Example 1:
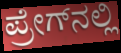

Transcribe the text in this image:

ಪ್ರೇಗ್‌ನಲ್ಲಿ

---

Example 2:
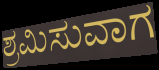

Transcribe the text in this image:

ಶ್ರಮಿಸುವಾಗ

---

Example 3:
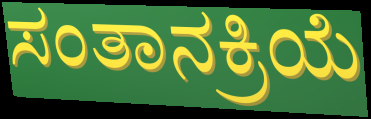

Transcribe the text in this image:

ಸಂತಾನಕ್ರಿಯೆ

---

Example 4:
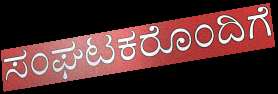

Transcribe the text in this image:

ಸಂಘಟಕರೊಂದಿಗೆ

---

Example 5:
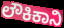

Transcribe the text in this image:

ಲೌಕಿಕಾನಿ